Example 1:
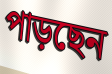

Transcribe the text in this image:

পাড়ছেন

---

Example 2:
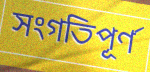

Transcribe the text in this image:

সংগতিপূর্ণ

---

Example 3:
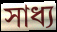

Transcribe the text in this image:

সাধ্য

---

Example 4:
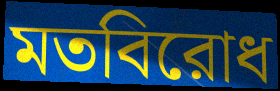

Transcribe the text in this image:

মতবিরোধ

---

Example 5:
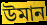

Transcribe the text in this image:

উমান